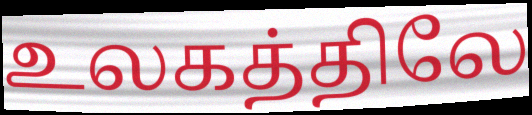
உலகத்திலே